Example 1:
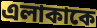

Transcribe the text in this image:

এলাকাকে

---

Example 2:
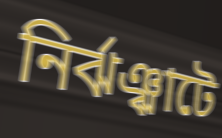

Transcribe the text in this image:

নির্ঝঞ্ঝাটে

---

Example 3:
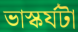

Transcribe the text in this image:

ভাস্কর্যটা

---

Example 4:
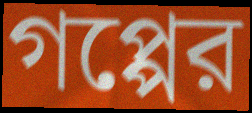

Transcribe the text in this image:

গপ্পের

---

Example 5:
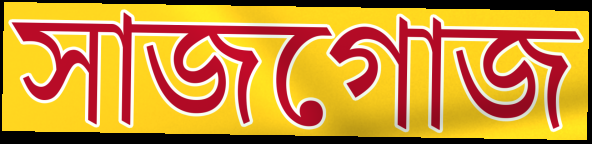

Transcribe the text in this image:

সাজগোজ